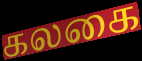
கலகை